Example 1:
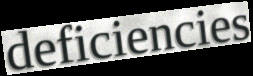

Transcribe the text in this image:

deficiencies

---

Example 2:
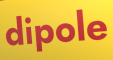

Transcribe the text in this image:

dipole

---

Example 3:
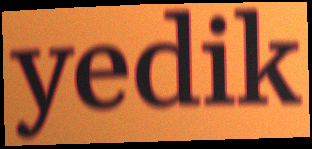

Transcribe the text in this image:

yedik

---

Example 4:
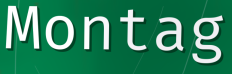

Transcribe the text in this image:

Montag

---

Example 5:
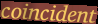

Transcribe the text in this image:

coincident